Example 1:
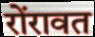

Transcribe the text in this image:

रोंरावत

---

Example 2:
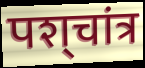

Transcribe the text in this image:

पश्चांत्र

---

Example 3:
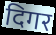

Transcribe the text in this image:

दिगर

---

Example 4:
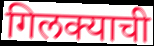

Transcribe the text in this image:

गिलक्याची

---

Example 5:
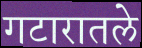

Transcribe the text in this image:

गटारातले